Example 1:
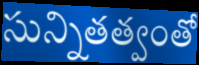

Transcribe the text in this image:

సున్నితత్వంతో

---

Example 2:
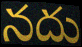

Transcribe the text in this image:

నదు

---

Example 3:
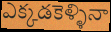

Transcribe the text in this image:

ఎక్కడకెళ్ళినా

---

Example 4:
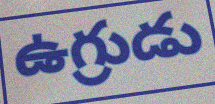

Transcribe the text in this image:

ఉగ్రుడు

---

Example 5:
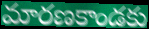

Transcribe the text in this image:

మారణకాండకు